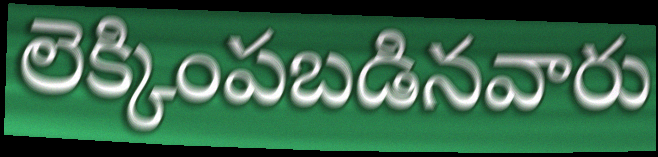
లెక్కింపబడినవారు